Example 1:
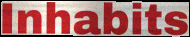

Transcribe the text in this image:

Inhabits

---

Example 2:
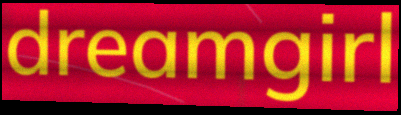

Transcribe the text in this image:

dreamgirl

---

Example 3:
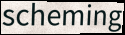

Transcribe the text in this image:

scheming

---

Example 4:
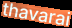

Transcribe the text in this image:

thavarai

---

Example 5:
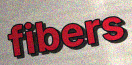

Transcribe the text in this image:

fibers